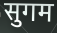
सुगम